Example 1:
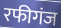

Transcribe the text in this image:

रफीगंज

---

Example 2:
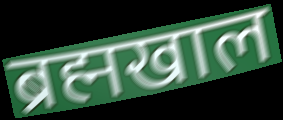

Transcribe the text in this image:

ब्रह्मखाल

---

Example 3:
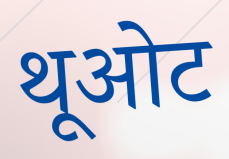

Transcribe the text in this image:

थूओट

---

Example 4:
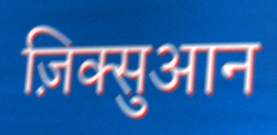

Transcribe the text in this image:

ज़िक्सुआन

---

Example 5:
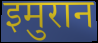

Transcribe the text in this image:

इमुरान